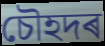
চৌহদৰ